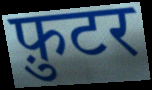
फ़ुटर